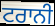
ਟਰਾਨੀ